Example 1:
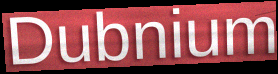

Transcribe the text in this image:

Dubnium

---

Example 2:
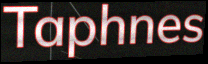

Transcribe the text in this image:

Taphnes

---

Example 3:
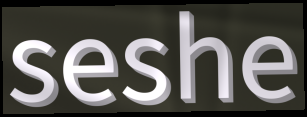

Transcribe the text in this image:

seshe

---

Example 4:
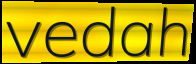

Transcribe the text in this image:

vedah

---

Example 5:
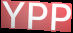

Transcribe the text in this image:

YPP